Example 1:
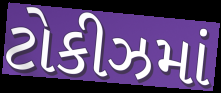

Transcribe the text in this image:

ટોકીઝમાં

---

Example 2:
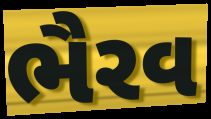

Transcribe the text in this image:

ભૈરવ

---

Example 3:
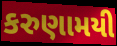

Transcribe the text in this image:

કરુણામયી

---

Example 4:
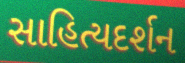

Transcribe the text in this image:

સાહિત્યદર્શન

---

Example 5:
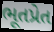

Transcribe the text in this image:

ભૂતપ્રેત